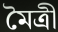
মৈত্ৰী